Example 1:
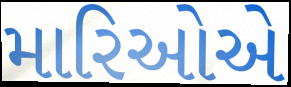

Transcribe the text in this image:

મારિઓએ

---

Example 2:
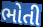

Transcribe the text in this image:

ભોતી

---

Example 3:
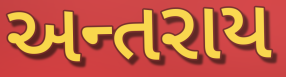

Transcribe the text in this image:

અન્તરાય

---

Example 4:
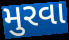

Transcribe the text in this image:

મુરવા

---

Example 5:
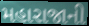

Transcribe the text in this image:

મહારાજાની